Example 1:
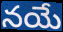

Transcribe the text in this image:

నయే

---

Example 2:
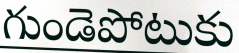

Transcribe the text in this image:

గుండెపోటుకు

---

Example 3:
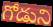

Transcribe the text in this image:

గోడుని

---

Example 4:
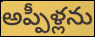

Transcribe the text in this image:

అప్పీళ్లను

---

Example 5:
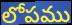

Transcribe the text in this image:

లోపము